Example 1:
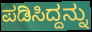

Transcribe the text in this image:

ಪಡಿಸಿದ್ದನ್ನು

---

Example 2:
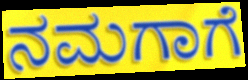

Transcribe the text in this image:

ನಮಗಾಗೆ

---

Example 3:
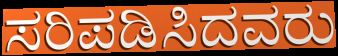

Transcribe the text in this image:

ಸರಿಪಡಿಸಿದವರು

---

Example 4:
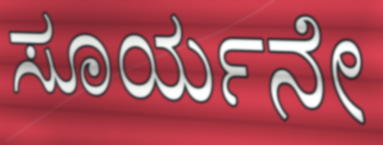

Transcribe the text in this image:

ಸೂರ್ಯನೇ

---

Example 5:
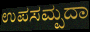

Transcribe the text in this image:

ಉಪಸಮ್ಪದಾ